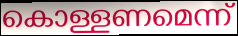
കൊള്ളണമെന്ന്